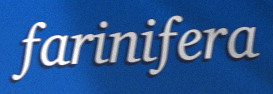
farinifera